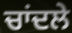
ਚਾਂਦਲੇ